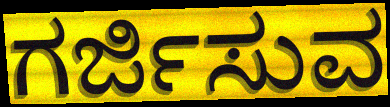
ಗರ್ಜಿಸುವ